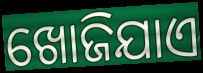
ଖୋଜିଯାଏ